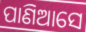
ପାଣିଆସେ